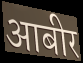
आबीर